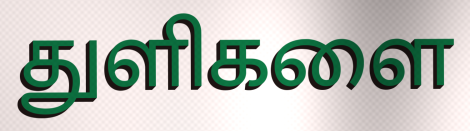
துளிகளை